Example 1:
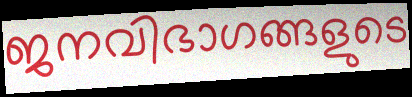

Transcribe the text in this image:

ജനവിഭാഗങ്ങളുടെ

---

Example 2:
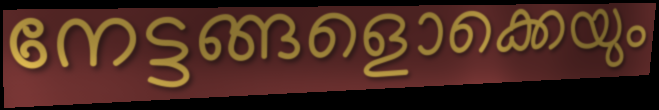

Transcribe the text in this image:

നേട്ടങ്ങളൊക്കെയും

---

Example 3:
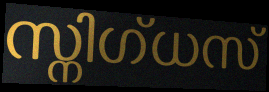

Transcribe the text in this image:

സ്നിഗ്ധസ്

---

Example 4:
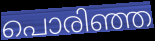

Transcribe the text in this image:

പൊരിഞ്ഞ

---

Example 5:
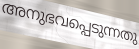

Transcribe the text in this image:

അനുഭവപ്പെടുന്നതു